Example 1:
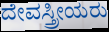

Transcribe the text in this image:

ದೇವಸ್ತ್ರೀಯರು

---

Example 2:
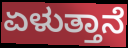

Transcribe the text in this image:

ಏಳುತ್ತಾನೆ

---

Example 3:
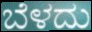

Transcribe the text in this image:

ಬೆಳದು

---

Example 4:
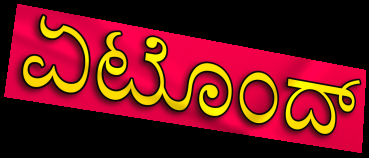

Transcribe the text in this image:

ಏಟೊಂದ್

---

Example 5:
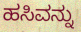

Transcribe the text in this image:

ಹಸಿವನ್ನು